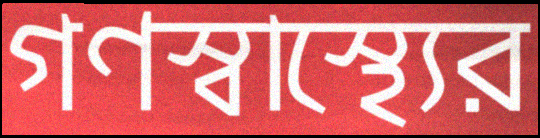
গণস্বাস্থ্যের